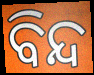
ବିନ୍ଦ